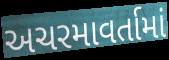
અચરમાવર્તામાં